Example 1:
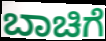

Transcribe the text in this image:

ಬಾಚಿಗೆ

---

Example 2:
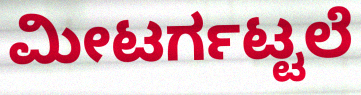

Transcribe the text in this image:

ಮೀಟರ್ಗಟ್ಟಲೆ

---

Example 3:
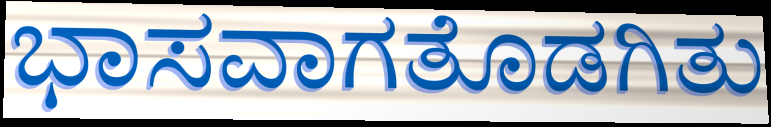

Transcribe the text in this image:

ಭಾಸವಾಗತೊಡಗಿತು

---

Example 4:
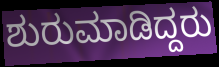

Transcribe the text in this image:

ಶುರುಮಾಡಿದ್ದರು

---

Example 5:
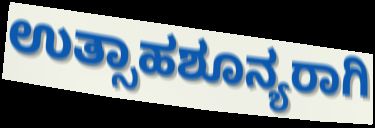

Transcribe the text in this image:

ಉತ್ಸಾಹಶೂನ್ಯರಾಗಿ